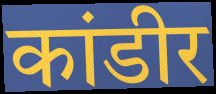
कांडीर